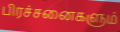
பிரச்சனைகளும்